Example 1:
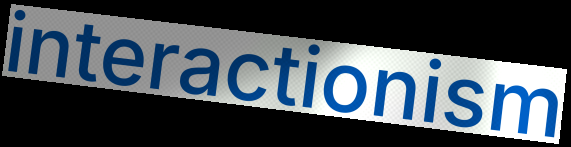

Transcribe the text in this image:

interactionism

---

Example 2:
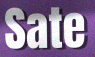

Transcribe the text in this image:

Sate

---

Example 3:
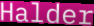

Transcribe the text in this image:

Halder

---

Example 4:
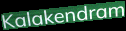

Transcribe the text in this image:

Kalakendram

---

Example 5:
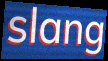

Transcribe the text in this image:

slang